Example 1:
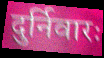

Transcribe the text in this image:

दुर्निवारः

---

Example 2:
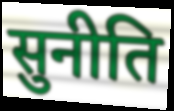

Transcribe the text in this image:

सुनीति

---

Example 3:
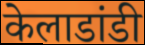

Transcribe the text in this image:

केलाडांडी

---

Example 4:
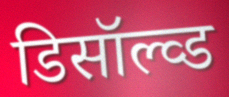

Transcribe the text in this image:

डिसॉल्व्ड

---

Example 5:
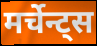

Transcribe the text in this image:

मर्चेन्ट्स